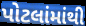
પોટલાંમાંથી